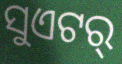
ସୁଏଟର୍